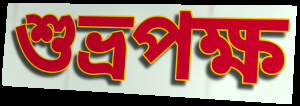
শুভ্রপক্ষ